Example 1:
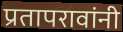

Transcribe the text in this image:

प्रतापरावांनी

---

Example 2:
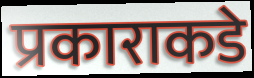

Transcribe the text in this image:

प्रकाराकडे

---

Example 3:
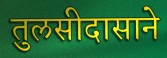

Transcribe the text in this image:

तुलसीदासाने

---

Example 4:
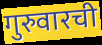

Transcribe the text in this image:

गुरुवारची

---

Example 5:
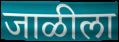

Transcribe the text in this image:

जाळीला